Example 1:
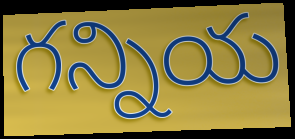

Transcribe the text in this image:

గన్నియ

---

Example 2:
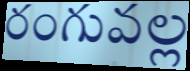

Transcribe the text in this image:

రంగువల్ల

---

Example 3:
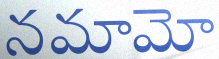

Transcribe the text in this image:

నమామో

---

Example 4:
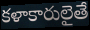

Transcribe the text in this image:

కళాకారులైతే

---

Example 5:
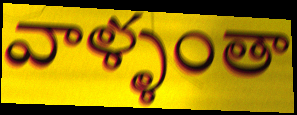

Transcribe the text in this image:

వాళ్ళంతా